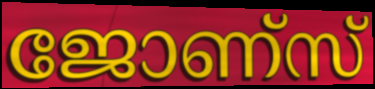
ജോണ്സ്